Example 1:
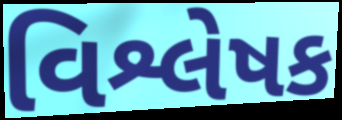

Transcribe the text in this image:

વિશ્લેષક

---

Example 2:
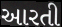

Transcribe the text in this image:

આરતી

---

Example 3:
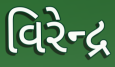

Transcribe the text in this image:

વિરેન્દ્ર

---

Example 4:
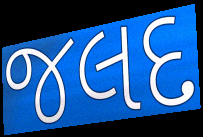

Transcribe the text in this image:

જલદ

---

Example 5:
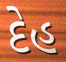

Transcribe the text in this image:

દેહ